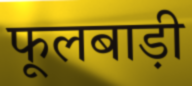
फूलबाड़ी